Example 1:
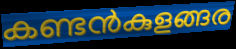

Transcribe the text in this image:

കണ്ടൻകുളങ്ങര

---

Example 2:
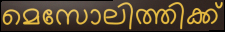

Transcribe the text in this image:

മെസോലിത്തിക്ക്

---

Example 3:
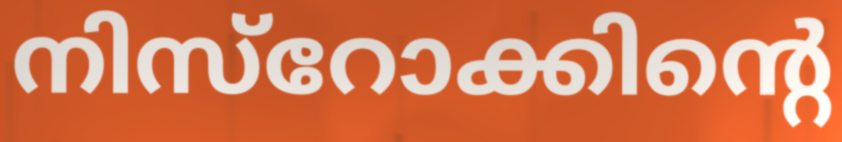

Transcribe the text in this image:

നിസ്റോക്കിന്റെ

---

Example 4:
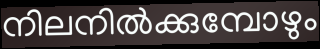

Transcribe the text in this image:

നിലനിൽക്കുമ്പോഴും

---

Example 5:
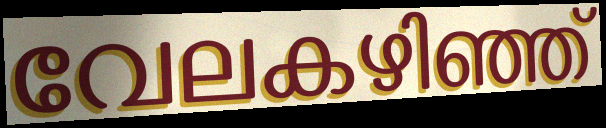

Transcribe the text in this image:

വേലകഴിഞ്ഞ്